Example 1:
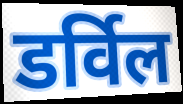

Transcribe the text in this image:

डर्विल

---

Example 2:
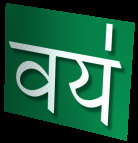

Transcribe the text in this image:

वय॑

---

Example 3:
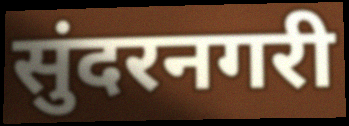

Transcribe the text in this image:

सुंदरनगरी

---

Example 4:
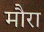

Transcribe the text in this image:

मौरा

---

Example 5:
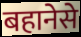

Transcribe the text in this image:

बहानेसे